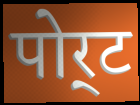
पोर्ट